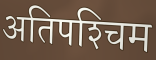
अतिपश्चिम